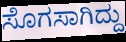
ಸೊಗಸಾಗಿದ್ದು